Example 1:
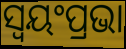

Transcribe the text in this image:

ସ୍ଵୟଂପ୍ରଭା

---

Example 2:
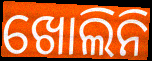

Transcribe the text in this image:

ଖୋଲିନି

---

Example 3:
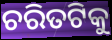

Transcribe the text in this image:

ଚରିତଟିକୁ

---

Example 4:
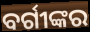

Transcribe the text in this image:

ବର୍ଗୀଙ୍କର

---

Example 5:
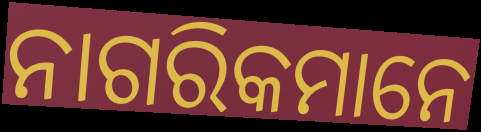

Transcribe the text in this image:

ନାଗରିକମାନେ